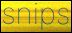
snips